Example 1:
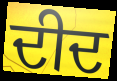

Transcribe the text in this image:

ਦੀਦ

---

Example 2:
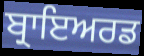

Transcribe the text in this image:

ਬ੍ਰਾਇਅਰਡ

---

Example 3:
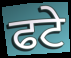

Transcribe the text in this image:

ਫਟੇ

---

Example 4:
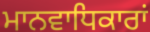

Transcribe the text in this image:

ਮਾਨਵਾਧਿਕਾਰਾਂ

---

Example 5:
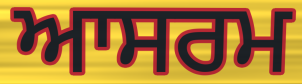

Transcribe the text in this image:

ਆਸਰਮ